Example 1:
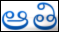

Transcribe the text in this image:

ఆతి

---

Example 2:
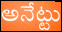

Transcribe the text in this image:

అనేట్టు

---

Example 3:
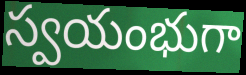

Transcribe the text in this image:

స్వయంభుగా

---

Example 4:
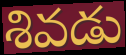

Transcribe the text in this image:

శివడు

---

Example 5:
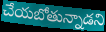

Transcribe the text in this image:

చేయబోతున్నాడని